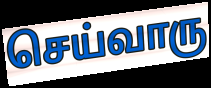
செய்வாரு